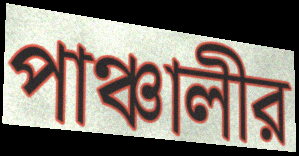
পাঞ্চালীর